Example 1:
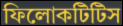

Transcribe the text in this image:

ফিলোকটিটিস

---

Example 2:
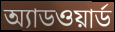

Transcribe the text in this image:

অ্যাডওয়ার্ড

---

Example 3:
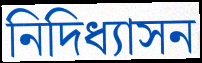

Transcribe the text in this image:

নিদিধ্যাসন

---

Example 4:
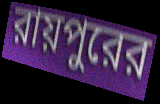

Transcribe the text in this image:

রায়পুরের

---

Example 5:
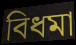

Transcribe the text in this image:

বিধমা